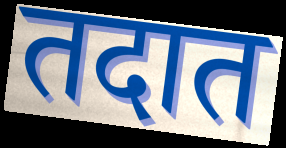
तदात